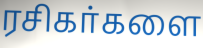
ரசிகர்களை